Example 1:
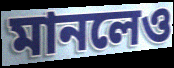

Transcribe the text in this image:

মানলেও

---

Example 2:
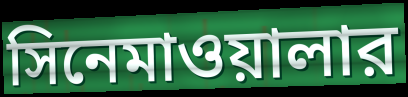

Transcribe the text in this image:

সিনেমাওয়ালার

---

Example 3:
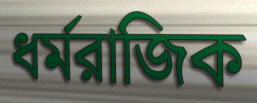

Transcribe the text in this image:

ধর্মরাজিক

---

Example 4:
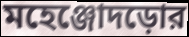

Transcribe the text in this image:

মহেঞ্জোদড়োর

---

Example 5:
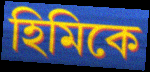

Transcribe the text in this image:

হিমিকে